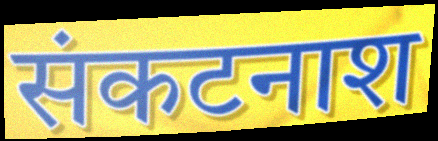
संकटनाश